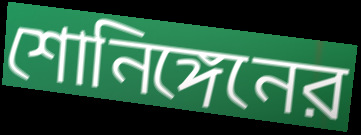
শোনিঙ্গেনের